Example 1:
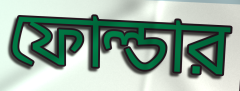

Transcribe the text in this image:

ফোল্ডার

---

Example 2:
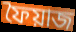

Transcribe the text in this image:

ফৈয়াজ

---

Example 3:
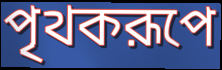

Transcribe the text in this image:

পৃথকরূপে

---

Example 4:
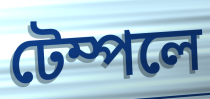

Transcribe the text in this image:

টেম্পলে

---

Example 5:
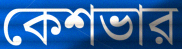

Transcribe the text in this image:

কেশভার